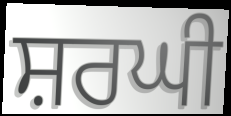
ਸ਼ਰਘੀ